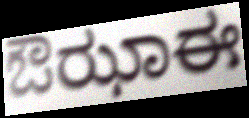
ಔಝಾಈ